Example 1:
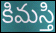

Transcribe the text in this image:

కిమస్తి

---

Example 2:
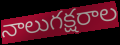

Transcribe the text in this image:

నాలుగక్షరాల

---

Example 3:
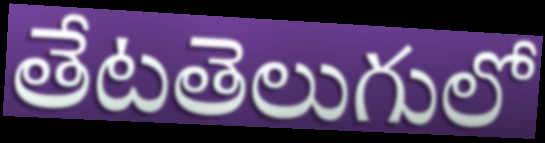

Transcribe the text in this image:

తేటతెలుగులో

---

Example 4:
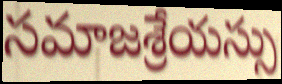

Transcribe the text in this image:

సమాజశ్రేయస్సు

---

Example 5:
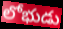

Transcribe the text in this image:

లోభుడు